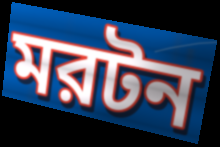
মরটন